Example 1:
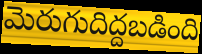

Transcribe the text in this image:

మెరుగుదిద్దబడింది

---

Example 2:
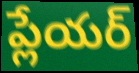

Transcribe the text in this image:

ప్లేయర్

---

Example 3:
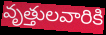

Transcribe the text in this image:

వృత్తులవారికి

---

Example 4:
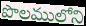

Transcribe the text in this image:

పొలములోని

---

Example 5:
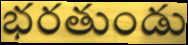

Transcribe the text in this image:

భరతుండు